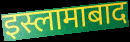
इस्लामाबाद